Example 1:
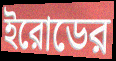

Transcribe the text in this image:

ইরোডের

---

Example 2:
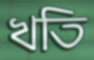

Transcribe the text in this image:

খতি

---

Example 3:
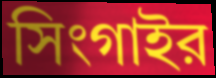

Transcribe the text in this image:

সিংগাইর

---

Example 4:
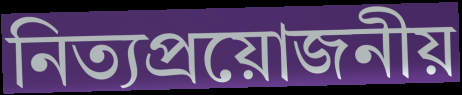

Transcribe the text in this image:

নিত্যপ্রয়োজনীয়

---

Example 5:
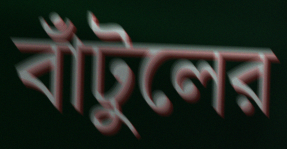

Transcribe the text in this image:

বাঁটুলের